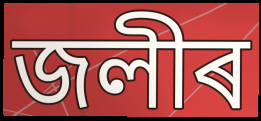
জলীৰ